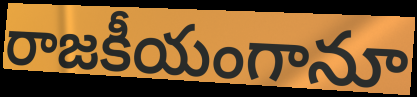
రాజకీయంగానూ